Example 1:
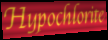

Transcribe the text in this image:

Hypochlorite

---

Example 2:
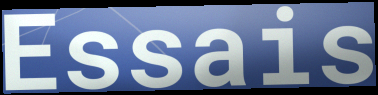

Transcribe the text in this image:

Essais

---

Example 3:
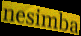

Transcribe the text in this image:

nesimba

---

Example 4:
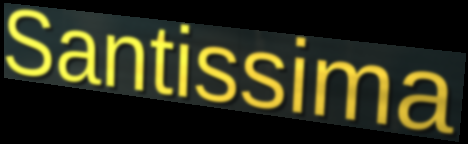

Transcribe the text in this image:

Santissima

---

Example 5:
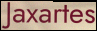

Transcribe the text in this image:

Jaxartes